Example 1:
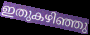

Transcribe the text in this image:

ഇതുകഴിഞ്ഞു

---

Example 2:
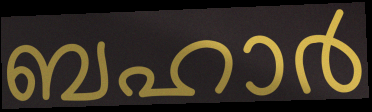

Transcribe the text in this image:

ബഹാർ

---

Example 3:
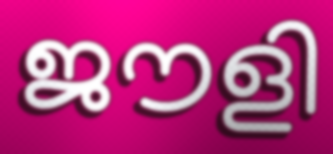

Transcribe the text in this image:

ജൗളി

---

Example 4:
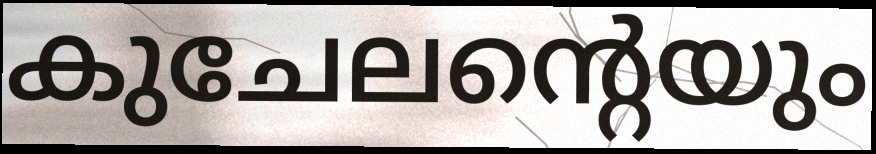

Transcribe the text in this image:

കുചേലന്റെയും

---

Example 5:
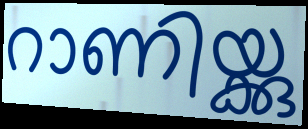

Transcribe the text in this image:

റാണിയ്ക്കു